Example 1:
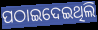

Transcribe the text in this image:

ପଠାଇଦେଇଥିଲି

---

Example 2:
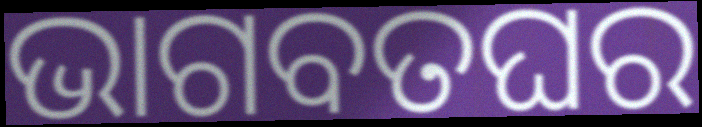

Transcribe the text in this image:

ଭାଗବତଘର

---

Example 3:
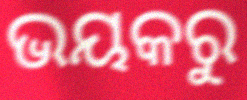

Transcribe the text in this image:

ଭୟକରୁ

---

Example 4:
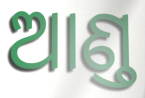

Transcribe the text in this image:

ଆଣ୍ଡ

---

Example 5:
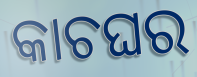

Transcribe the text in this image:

କାଚଘର